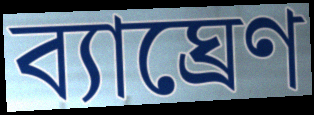
ব্যাঘ্রেণ